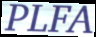
PLFA